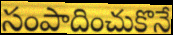
సంపాదించుకొనే